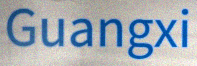
Guangxi